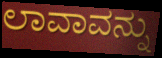
ಲಾವಾವನ್ನು